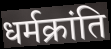
धर्मक्रांति